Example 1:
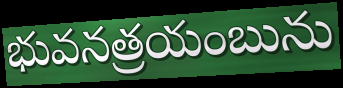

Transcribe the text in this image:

భువనత్రయంబును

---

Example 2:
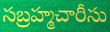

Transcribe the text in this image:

సబ్రహ్మచారీసు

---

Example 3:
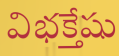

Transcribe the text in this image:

విభక్తేషు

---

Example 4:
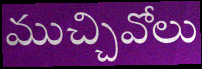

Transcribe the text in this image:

ముచ్చివోలు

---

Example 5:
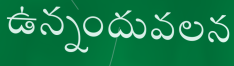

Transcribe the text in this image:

ఉన్నందువలన